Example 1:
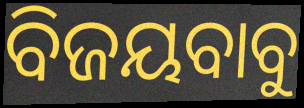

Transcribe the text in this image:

ବିଜୟବାବୁ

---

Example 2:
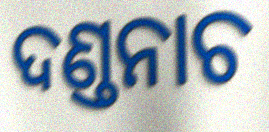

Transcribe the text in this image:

ଦଣ୍ଡନାଚ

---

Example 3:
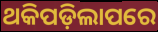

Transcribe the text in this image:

ଥକିପଡ଼ିଲାପରେ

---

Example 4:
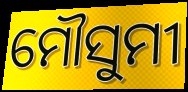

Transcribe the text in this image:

ମୌସୁମୀ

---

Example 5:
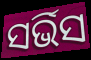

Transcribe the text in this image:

ସର୍ଭିସ